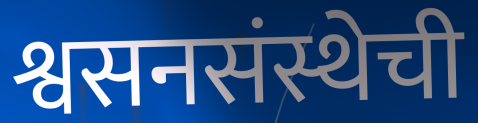
श्वसनसंस्थेची